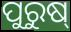
ପୁରୁଷ୍